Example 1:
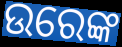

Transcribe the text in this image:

ଉରେଙ୍କ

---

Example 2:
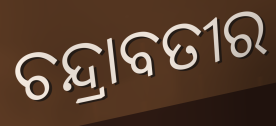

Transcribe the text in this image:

ଚନ୍ଦ୍ରାବତୀର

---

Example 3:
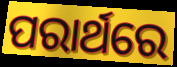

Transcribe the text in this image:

ପରାର୍ଥରେ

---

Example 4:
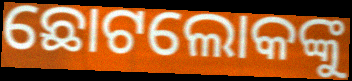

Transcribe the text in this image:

ଛୋଟଲୋକଙ୍କୁ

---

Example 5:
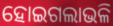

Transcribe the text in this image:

ହୋଇଗଲାଭଳି